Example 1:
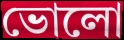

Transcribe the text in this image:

ভোলো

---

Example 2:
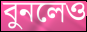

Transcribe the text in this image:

বুনলেও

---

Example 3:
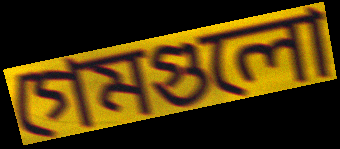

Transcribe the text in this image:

গেমগুলো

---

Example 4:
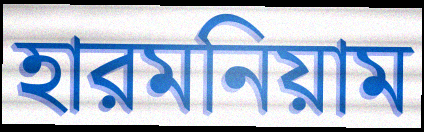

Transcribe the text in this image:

হারমনিয়াম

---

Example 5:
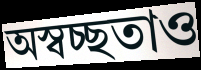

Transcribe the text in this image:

অস্বচ্ছতাও